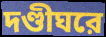
দণ্ডীঘরে